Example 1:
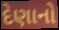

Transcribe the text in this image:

દેણાનો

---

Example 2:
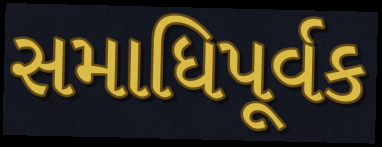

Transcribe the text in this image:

સમાધિપૂર્વક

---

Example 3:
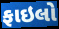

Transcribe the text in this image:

ફાઇલો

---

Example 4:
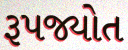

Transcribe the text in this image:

રૂપજ્યોત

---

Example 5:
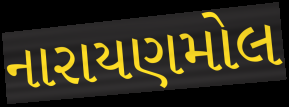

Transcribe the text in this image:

નારાયણમોલ